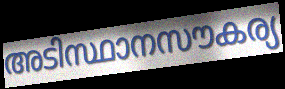
അടിസ്ഥാനസൗകര്യ